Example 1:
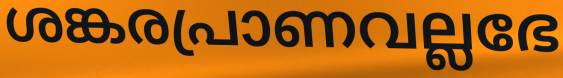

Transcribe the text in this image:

ശങ്കരപ്രാണവല്ലഭേ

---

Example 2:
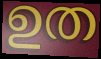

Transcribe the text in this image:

ഉത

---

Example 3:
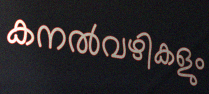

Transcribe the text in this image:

കനൽവഴികളും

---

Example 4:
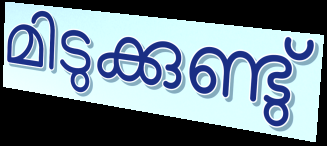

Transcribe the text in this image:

മിടുക്കുണ്ടു്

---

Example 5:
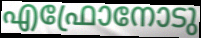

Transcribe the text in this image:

എഫ്രോനോടു